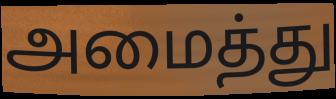
அமைத்து